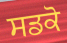
ਸਡਕੋ